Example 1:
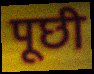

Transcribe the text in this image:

पूछी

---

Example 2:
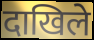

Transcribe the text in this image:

दाखिले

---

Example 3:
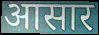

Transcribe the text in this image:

आसार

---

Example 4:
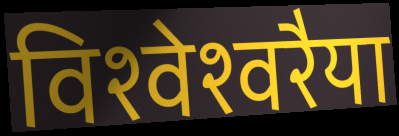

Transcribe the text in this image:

विश्वेश्वरैया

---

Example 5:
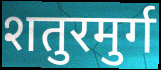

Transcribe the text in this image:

शतुरमुर्ग